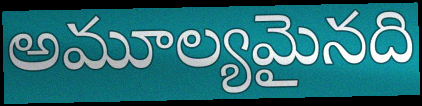
అమూల్యమైనది